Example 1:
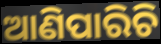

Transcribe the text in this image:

ଆଣିପାରିଚି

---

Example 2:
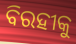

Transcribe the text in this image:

ବିରହୀକୁ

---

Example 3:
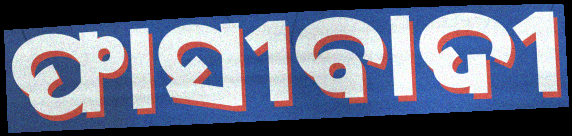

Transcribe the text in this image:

ଫାସୀବାଦୀ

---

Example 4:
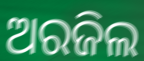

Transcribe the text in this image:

ଅରଜିଲ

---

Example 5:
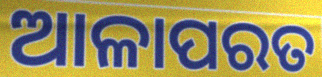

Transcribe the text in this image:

ଆଳାପରତ